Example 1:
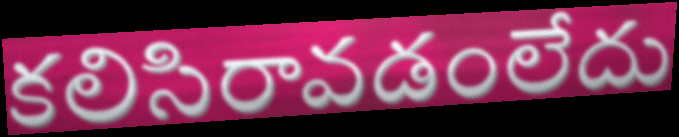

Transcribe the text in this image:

కలిసిరావడంలేదు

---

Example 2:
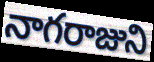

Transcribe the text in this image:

నాగరాజుని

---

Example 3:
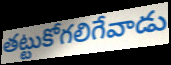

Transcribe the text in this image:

తట్టుకోగలిగేవాడు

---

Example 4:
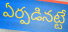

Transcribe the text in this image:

ఏర్పడినట్టే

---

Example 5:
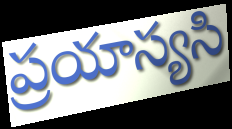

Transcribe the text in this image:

ప్రయాస్యసి